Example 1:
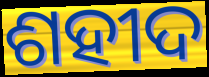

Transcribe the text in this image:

ଶହୀଦ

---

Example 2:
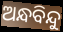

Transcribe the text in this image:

ଅନ୍ଧବିନ୍ଦୁ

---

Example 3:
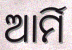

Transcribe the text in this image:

ଆର୍ମି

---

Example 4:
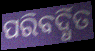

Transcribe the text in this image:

ପରିବର୍ଦ୍ଧିତ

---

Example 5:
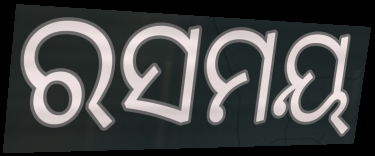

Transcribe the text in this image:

ରସମୟ